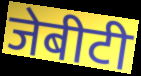
जेबीटी